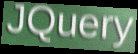
JQuery